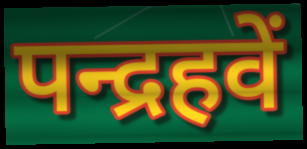
पन्द्रहवें